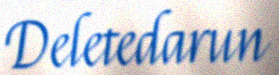
Deletedarun